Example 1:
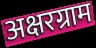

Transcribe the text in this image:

अक्षरग्राम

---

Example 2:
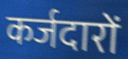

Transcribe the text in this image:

कर्जदारों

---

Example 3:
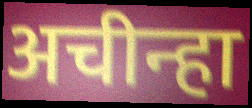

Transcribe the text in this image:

अचीन्हा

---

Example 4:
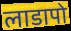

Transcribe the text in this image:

लाडापो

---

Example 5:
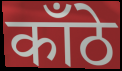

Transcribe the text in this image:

काँठे